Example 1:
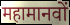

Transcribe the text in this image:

महामानवों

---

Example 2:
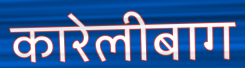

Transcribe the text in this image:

कारेलीबाग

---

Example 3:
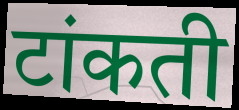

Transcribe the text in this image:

टांकती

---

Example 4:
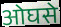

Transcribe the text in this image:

ओघसे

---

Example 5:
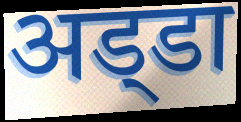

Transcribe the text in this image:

अड्‍डा